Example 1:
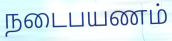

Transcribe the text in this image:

நடைபயணம்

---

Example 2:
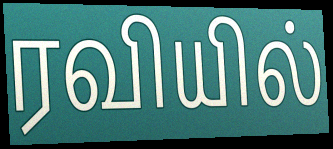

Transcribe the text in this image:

ரவியில்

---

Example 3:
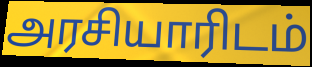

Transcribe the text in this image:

அரசியாரிடம்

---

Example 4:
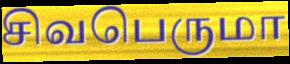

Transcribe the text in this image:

சிவபெருமா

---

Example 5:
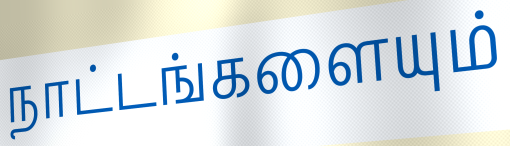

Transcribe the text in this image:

நாட்டங்களையும்